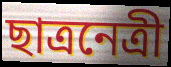
ছাত্রনেত্রী